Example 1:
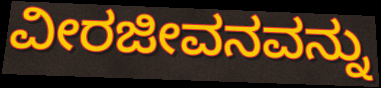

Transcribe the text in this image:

ವೀರಜೀವನವನ್ನು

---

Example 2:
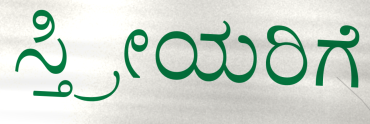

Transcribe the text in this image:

ಸ್ತ್ರೀಯರಿಗೆ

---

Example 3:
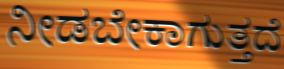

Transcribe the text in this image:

ನೀಡಬೇಕಾಗುತ್ತದೆ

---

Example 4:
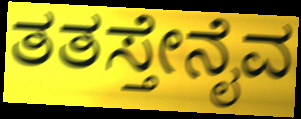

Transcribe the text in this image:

ತತಸ್ತೇನೈವ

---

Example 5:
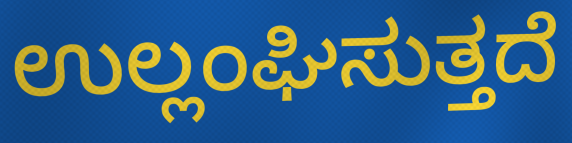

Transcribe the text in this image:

ಉಲ್ಲಂಘಿಸುತ್ತದೆ